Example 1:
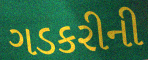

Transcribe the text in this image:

ગડકરીની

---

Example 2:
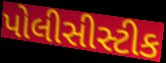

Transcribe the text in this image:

પોલીસીસ્ટીક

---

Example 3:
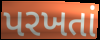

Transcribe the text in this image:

પરખતાં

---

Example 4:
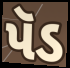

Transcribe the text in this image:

પૅડ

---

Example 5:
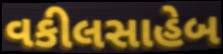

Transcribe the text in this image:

વકીલસાહેબ